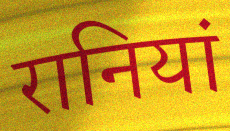
रानियां